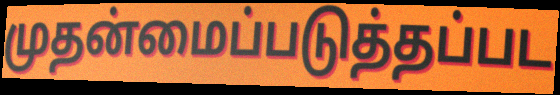
முதன்மைப்படுத்தப்பட